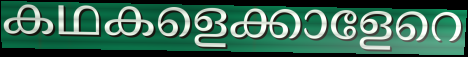
കഥകളെക്കാളേറെ